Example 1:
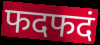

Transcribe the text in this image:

फदफदं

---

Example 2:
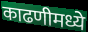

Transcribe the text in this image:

काढणीमध्ये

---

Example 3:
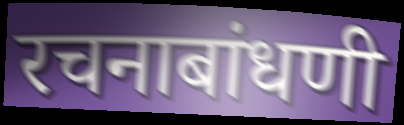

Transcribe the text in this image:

रचनाबांधणी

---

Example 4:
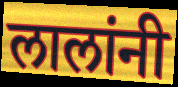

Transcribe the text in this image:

लालांनी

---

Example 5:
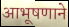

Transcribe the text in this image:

आभूषणाने